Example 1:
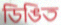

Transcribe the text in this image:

ডিঙিত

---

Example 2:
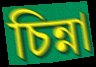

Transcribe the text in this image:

চিন্না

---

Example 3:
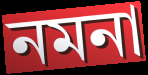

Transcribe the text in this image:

নমনা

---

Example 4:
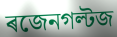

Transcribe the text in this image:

ৰজেনগল্টজ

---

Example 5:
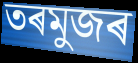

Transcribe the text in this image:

তৰমুজৰ